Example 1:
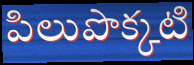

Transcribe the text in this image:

పిలుపొక్కటి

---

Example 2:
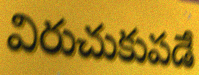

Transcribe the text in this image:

విరుచుకుపడే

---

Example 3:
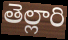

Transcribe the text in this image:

తెల్లారి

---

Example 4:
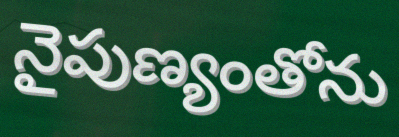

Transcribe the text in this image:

నైపుణ్యంతోను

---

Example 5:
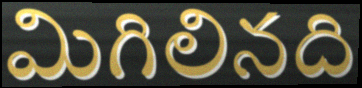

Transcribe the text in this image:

మిగిలినది